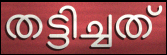
തട്ടിച്ചത്